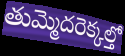
తుమ్మెదరెక్కల్తో